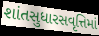
શાંતસુધારસવૃત્તિમાં